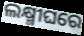
ଲକ୍ଷ୍ମୀଘରେ